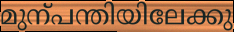
മുന്പന്തിയിലേക്കു